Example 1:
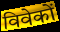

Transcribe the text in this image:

विवेकों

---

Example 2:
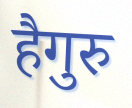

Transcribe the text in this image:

हैगुरु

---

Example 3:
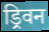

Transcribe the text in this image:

ड्रिवन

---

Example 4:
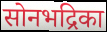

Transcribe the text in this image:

सोनभद्रिका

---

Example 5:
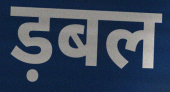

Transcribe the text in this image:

ड़बल